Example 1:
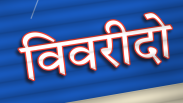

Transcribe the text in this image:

विवरीदो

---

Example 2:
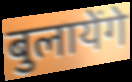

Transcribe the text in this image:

बुलायेंगे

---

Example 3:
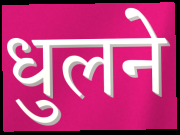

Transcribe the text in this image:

धुलने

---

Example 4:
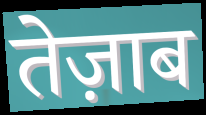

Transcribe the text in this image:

तेज़ाब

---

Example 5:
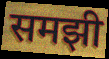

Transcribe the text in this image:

समझी